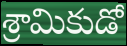
శ్రామికుడో